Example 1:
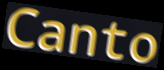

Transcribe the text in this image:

Canto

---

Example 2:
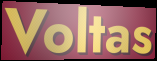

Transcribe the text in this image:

Voltas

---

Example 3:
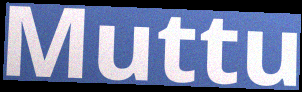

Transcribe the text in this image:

Muttu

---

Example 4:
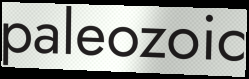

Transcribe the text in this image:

paleozoic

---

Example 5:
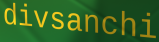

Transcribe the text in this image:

divsanchi